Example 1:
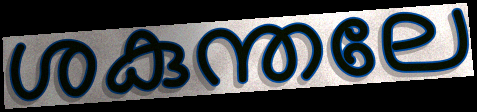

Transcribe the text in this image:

ശകുന്തലേ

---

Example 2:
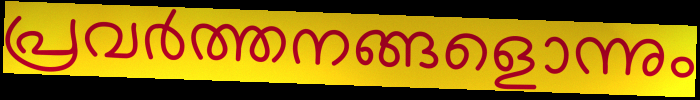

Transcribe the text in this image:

പ്രവർത്തനങ്ങളൊന്നും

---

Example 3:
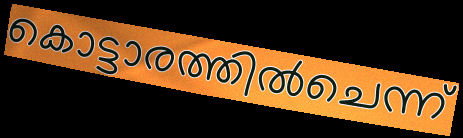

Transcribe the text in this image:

കൊട്ടാരത്തിൽചെന്ന്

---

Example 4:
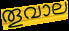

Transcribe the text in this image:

തൂവാല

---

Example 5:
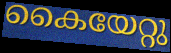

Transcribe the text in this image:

കൈയേറ്റു